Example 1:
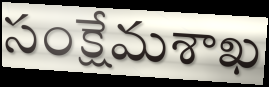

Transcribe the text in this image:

సంక్షేమశాఖ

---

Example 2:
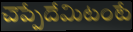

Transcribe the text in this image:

చెప్పేదేమిటంటే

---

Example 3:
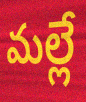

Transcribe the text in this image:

మల్లే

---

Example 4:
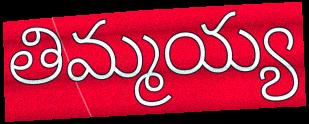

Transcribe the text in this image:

తిమ్మయ్య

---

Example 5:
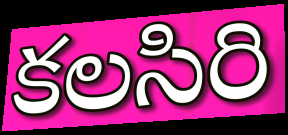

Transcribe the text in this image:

కలసిరి